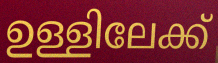
ഉള്ളിലേക്ക്